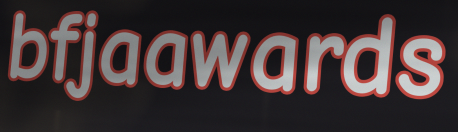
bfjaawards